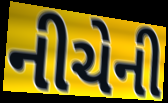
નીચેની